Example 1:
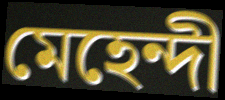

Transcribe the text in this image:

মেহেন্দী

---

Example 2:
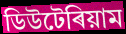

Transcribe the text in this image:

ডিউটেৰিয়াম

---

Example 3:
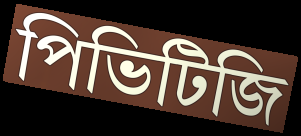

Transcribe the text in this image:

পিভিটিজি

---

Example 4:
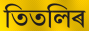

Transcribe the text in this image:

তিতলিৰ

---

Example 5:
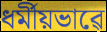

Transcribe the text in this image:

ধৰ্মীয়ভাৱে